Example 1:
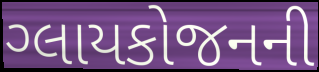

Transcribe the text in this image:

ગ્લાયકોજનની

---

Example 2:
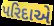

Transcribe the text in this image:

પરિદાએ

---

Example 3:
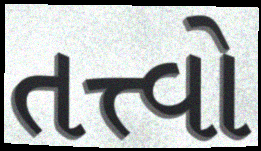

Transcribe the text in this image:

તત્ત્વો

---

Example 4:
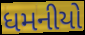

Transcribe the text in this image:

ધમનીયો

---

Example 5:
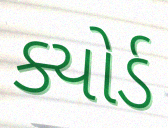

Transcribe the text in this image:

ક્યોર્ડ